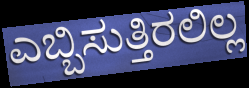
ಎಬ್ಬಿಸುತ್ತಿರಲಿಲ್ಲ